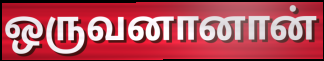
ஒருவனானான்